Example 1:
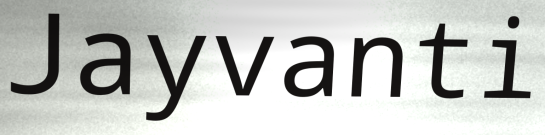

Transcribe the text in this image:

Jayvanti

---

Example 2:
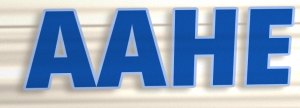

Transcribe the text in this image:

AAHE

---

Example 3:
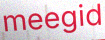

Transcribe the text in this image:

meegid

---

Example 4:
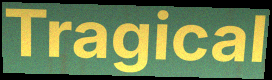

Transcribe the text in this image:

Tragical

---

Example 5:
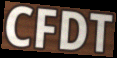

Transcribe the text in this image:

CFDT